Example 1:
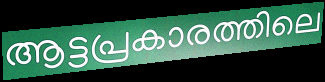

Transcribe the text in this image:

ആട്ടപ്രകാരത്തിലെ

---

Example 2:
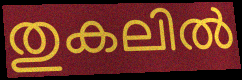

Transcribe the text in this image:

തുകലിൽ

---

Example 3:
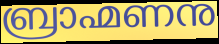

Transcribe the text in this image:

ബ്രാഹ്മണനു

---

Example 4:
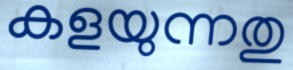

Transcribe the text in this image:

കളയുന്നതു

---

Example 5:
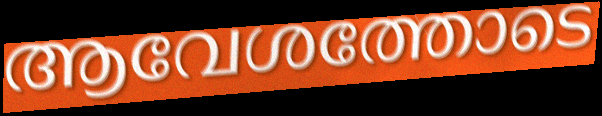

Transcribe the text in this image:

ആവേശത്തോടെ